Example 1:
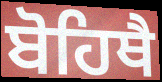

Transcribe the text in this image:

ਬੋਹਿਥੈ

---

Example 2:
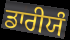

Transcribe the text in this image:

ਡਾਰੀਯੰ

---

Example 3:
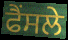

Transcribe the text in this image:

ਫੈਂਸਲੇ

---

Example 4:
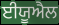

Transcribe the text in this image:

ਈਯੂਐਲ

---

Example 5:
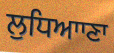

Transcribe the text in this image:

ਲੁਧਿਆਾਣਾ